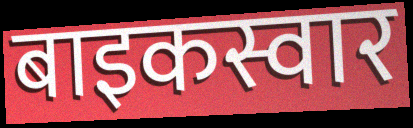
बाइकस्वार